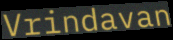
Vrindavan